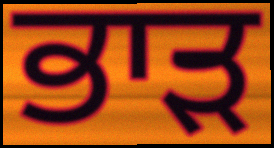
ਭਾੜ